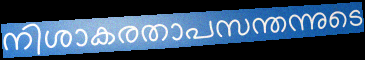
നിശാകരതാപസന്തന്നുടെ